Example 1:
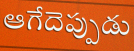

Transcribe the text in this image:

ఆగేదెప్పుడు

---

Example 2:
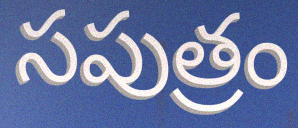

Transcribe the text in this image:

సపుత్రం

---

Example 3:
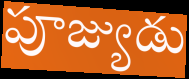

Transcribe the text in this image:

పూజ్యుడు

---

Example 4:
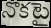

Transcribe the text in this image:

నొకటై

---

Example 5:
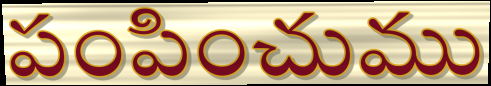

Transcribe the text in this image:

పంపించుము